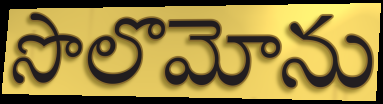
సొలొమోను